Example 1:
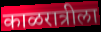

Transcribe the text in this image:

काळरात्रीला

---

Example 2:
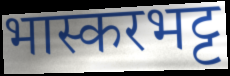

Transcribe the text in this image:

भास्करभट्ट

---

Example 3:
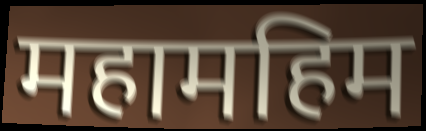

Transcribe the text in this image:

महामहिम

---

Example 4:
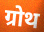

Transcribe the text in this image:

ग्रोथ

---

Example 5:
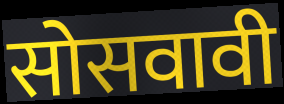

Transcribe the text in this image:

सोसवावी